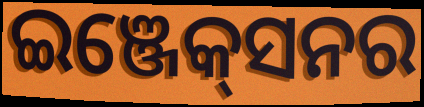
ଇଞ୍ଜେକ୍‌ସନର